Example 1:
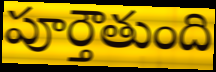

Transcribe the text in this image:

పూర్తౌతుంది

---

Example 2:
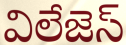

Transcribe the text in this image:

విలేజెస్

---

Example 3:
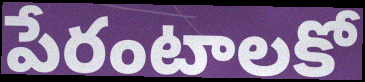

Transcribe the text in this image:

పేరంటాలకో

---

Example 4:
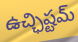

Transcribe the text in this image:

ఉచ్ఛిష్టమ్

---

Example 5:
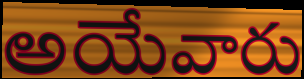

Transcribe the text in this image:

అయేవారు